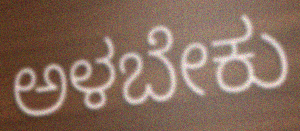
ಅಳಬೇಕು